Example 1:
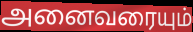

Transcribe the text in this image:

அனைவரையும்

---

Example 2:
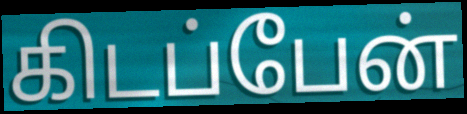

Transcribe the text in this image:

கிடப்பேன்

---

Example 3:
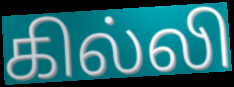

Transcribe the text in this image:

கில்லி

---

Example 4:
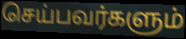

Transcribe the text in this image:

செய்பவர்களும்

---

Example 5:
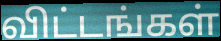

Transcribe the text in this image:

விட்டங்கள்